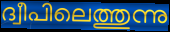
ദ്വീപിലെത്തുന്നു